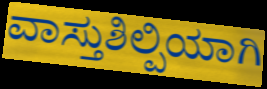
ವಾಸ್ತುಶಿಲ್ಪಿಯಾಗಿ